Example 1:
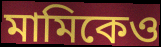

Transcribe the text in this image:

মামিকেও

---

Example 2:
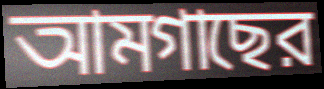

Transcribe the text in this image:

আমগাছের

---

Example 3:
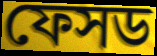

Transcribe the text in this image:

ফেসড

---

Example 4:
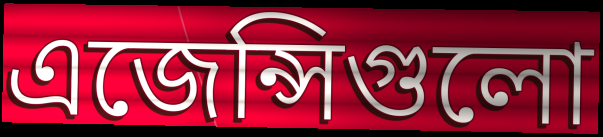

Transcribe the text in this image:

এজেন্সিগুলো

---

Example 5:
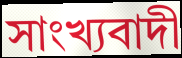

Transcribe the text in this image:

সাংখ্যবাদী